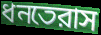
ধনতেরাস